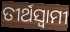
ତୀର୍ଥସ୍ୱାମୀ